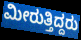
ಮೀರುತ್ತಿದ್ದರು